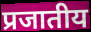
प्रजातीय